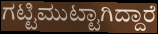
ಗಟ್ಟಿಮುಟ್ಟಾಗಿದ್ದಾರೆ